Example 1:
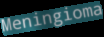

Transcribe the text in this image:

Meningioma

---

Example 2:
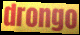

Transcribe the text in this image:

drongo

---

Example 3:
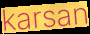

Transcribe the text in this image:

karsan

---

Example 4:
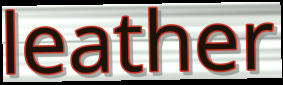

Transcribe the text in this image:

leather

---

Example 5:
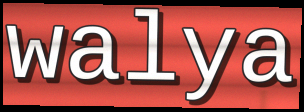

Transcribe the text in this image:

walya